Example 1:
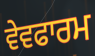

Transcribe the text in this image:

ਵੇਵਫਾਰਮ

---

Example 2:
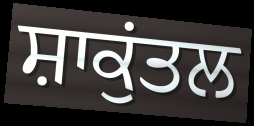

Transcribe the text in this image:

ਸ਼ਾਕੁਂਤਲ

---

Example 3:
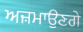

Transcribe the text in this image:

ਅਜ਼ਮਾਉਣਗੇ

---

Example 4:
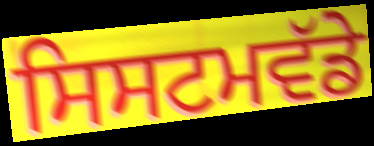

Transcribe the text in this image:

ਸਿਸਟਮਵੱਡੇ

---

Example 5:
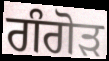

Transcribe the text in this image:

ਗੰਗੋੜ